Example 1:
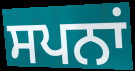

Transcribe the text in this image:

ਸਪਨਾਂ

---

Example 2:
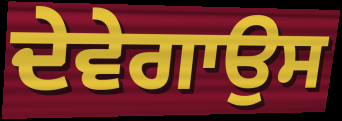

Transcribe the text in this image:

ਦੇਵੇਗਾਉਸ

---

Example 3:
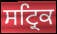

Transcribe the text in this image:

ਸਟ੍ਰਿਕ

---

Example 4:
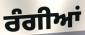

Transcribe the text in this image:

ਰੰਗੀਆਂ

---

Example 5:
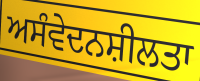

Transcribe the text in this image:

ਅਸੰਵੇਦਨਸ਼ੀਲਤਾ